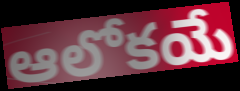
ఆలోకయే